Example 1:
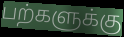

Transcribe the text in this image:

பற்களுக்கு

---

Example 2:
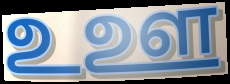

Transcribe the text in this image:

உஊ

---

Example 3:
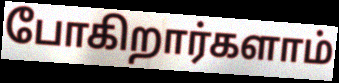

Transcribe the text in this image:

போகிறார்களாம்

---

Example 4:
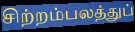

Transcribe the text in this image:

சிற்றம்பலத்துப்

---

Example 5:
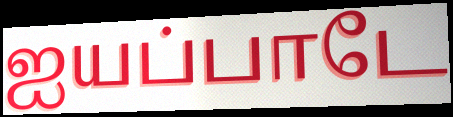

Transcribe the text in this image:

ஐயப்பாடே